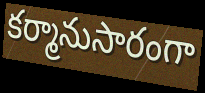
కర్మానుసారంగా